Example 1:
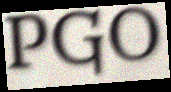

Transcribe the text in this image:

PGO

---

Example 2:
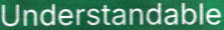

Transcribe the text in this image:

Understandable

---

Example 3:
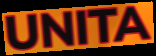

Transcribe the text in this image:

UNITA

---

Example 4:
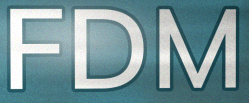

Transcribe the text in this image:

FDM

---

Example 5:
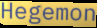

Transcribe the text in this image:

Hegemon